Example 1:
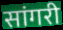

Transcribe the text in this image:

सांगरी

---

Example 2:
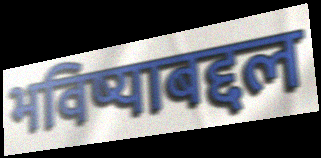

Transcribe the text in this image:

भविष्याबद्दल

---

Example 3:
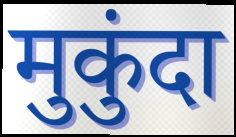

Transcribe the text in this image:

मुकुंदा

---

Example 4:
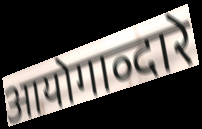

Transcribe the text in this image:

आयोगाव्दारे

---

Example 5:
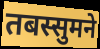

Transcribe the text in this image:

तबस्सुमने